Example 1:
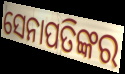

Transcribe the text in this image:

ସେନାପତିଙ୍କର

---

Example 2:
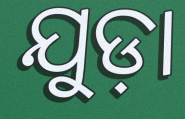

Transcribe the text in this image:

ଯୁଡ଼ା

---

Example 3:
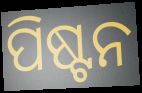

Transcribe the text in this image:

ପିଷ୍ଟନ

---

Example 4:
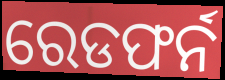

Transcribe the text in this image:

ରେଡଫର୍ନ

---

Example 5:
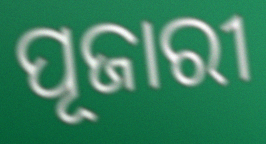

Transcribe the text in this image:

ପୂଜାରୀ